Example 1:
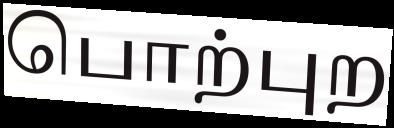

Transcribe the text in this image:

பொற்புற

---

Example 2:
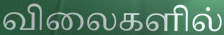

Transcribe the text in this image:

விலைகளில்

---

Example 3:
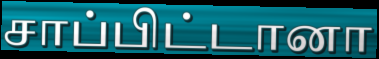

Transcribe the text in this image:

சாப்பிட்டானா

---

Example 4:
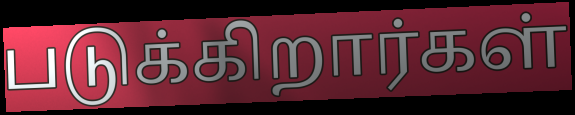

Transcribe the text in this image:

படுக்கிறார்கள்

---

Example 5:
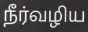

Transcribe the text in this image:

நீர்வழிய